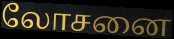
லோசனை